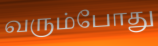
வரும்போது